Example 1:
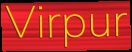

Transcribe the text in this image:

Virpur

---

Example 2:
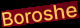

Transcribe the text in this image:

Boroshe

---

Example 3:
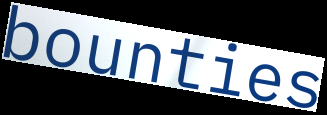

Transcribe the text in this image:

bounties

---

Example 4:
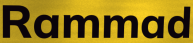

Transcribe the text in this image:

Rammad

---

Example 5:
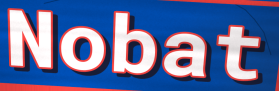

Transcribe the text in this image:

Nobat